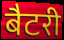
बैटरी